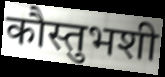
कौस्तुभशी